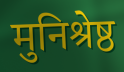
मुनिश्रेष्ठ